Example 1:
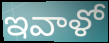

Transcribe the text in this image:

ఇవాళో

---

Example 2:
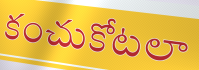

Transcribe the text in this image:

కంచుకోటలా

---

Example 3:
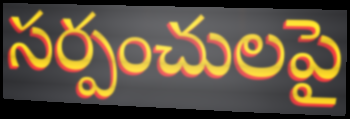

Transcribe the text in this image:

సర్పంచులపై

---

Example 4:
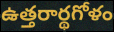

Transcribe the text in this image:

ఉత్తరార్థగోళం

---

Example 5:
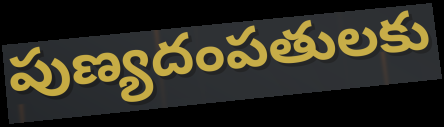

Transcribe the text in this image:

పుణ్యదంపతులకు